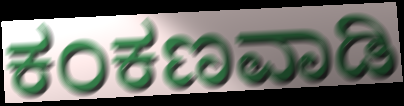
ಕಂಕಣವಾಡಿ